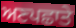
ਅਣਪਛਾਤੇ